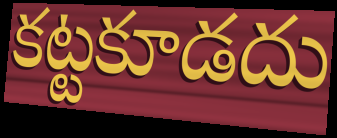
కట్టకూడదు